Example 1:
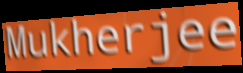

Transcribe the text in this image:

Mukherjee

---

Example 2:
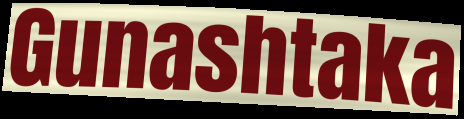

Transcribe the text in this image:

Gunashtaka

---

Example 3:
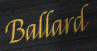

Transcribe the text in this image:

Ballard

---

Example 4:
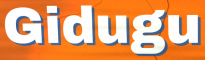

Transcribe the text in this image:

Gidugu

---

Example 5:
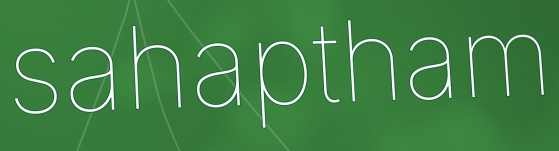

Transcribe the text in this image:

sahaptham